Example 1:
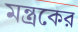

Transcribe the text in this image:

মন্ত্রকের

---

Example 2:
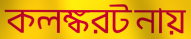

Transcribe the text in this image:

কলঙ্করটনায়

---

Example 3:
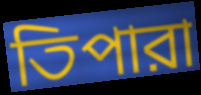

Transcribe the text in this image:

তিপারা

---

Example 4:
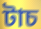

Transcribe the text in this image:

টাচ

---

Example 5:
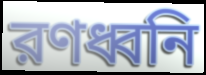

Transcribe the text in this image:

রণধ্বনি